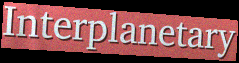
Interplanetary